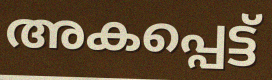
അകപ്പെട്ട്